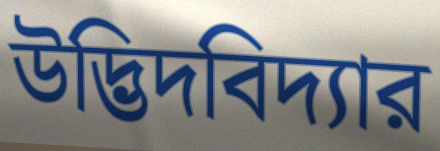
উদ্ভিদবিদ্যার